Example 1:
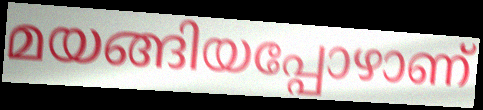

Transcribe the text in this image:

മയങ്ങിയപ്പോഴാണ്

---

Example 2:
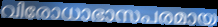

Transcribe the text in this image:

വിരോധാഭാസപരമായ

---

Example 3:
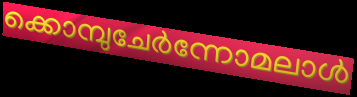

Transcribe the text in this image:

ക്കൊമ്പുചേർന്നോമലാൾ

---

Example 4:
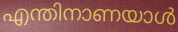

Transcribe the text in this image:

എന്തിനാണയാൾ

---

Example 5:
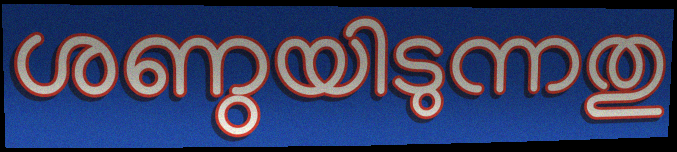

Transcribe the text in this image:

ശണ്ഠയിടുന്നതു